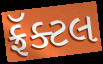
ફ્રૅક્ટલ